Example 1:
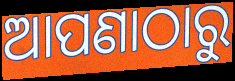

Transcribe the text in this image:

ଆପଣାଠାରୁ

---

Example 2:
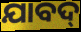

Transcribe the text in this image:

ଯାବଦ୍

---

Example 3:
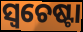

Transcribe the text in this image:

ସ୍ଵଚେଷ୍ଟା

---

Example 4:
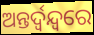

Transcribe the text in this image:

ଅନ୍ତର୍ଦ୍ୱନ୍ଦ୍ୱରେ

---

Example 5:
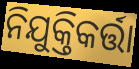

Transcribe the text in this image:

ନିଯୁକ୍ତିକର୍ତ୍ତା